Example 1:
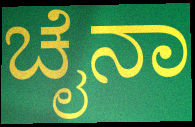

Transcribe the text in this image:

ಚೈನಾ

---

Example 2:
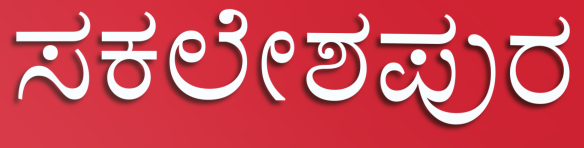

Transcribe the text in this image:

ಸಕಲೇಶಪುರ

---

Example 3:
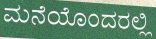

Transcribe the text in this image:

ಮನೆಯೊಂದರಲ್ಲಿ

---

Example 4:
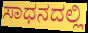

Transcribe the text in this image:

ಸಾಧನದಲ್ಲಿ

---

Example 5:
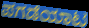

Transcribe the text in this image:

ಪಗಡೆಯಾಟ